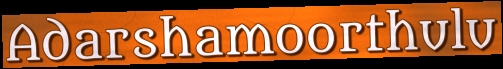
Adarshamoorthulu